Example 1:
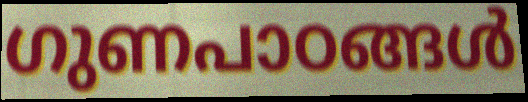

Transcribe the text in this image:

ഗുണപാഠങ്ങൾ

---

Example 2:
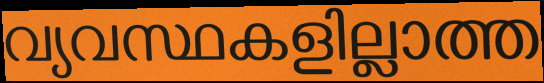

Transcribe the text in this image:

വ്യവസ്ഥകളില്ലാത്ത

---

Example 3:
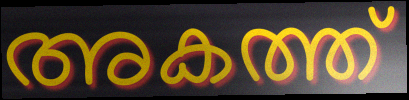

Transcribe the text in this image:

അകത്ത്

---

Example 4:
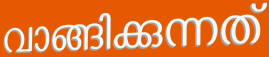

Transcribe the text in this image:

വാങ്ങിക്കുന്നത്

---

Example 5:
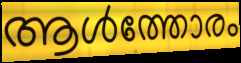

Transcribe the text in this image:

ആൾത്തോരം